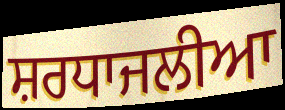
ਸ਼ਰਧਾਜਲੀਆ